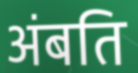
अंबति